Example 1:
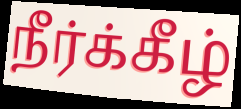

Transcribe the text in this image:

நீர்க்கீழ்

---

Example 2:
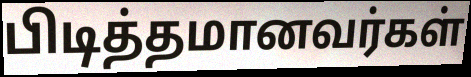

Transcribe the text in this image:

பிடித்தமானவர்கள்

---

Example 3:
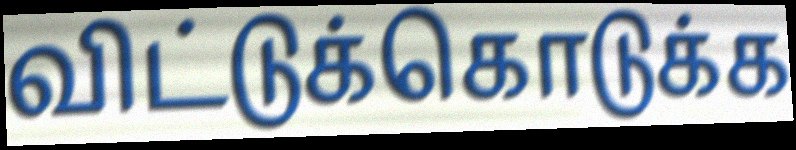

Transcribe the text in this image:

விட்டுக்கொடுக்க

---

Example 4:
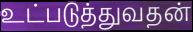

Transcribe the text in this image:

உட்படுத்துவதன்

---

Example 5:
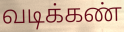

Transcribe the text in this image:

வடிக்கண்